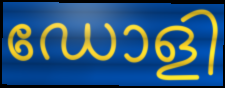
ഡോളി